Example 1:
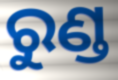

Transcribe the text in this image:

ରୁଣ୍ଡ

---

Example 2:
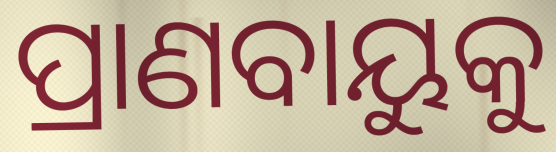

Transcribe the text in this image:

ପ୍ରାଣବାୟୁକୁ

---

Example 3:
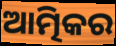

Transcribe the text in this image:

ଆତ୍ମିକର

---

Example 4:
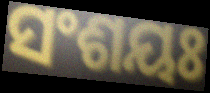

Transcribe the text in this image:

ସଂଶୟଃ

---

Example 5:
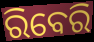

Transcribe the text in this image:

ରିବେରି